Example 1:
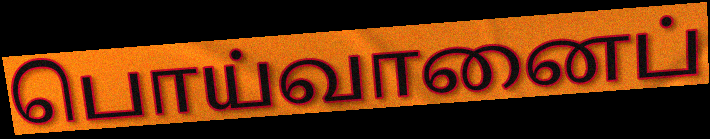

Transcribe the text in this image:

பொய்வானைப்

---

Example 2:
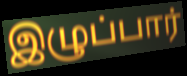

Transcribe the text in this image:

இழுப்பார்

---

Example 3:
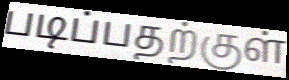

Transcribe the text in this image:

படிப்பதற்குள்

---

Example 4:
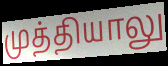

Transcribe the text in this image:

முத்தியாலு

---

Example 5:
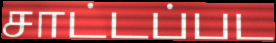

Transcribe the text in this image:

சாட்டப்பட